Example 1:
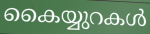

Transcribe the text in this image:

കൈയ്യുറകൾ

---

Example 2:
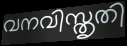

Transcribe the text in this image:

വനവിസ്തൃതി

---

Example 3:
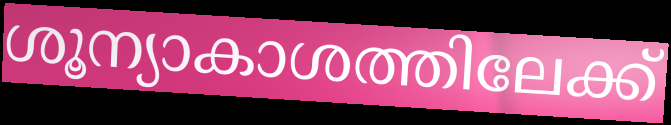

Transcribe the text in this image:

ശൂന്യാകാശത്തിലേക്ക്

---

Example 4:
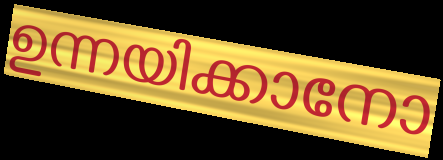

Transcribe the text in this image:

ഉന്നയിക്കാനോ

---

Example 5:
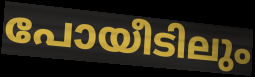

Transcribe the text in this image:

പോയീടിലും